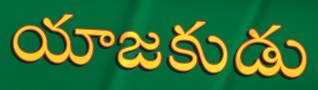
యాజకుడు